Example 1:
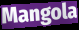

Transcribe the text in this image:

Mangola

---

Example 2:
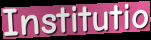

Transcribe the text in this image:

Institutio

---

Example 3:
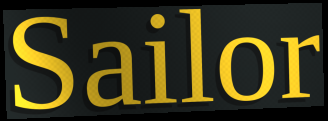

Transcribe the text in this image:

Sailor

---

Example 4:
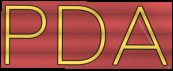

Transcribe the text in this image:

PDA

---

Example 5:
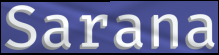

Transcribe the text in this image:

Sarana